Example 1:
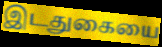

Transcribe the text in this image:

இடதுகையை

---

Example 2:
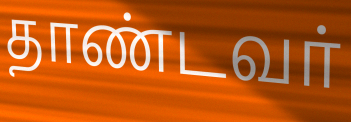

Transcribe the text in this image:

தாண்டவர்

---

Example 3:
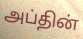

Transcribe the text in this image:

அப்தின்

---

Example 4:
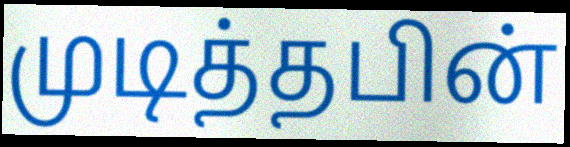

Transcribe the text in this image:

முடித்தபின்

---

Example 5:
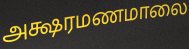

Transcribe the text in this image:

அக்ஷரமணமாலை